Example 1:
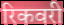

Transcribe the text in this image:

रिकवरी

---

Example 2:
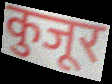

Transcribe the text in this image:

कुजूर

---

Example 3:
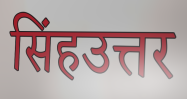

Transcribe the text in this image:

सिंहउत्तर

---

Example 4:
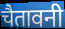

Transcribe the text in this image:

चैतावनी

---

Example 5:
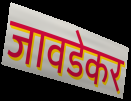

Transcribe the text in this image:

जावडेकर